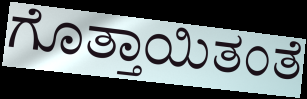
ಗೊತ್ತಾಯಿತಂತೆ